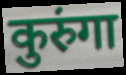
कुरुंगा